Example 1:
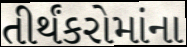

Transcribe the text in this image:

તીર્થંકરોમાંના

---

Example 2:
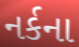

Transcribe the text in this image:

નર્કના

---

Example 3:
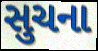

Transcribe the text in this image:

સુચના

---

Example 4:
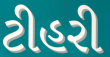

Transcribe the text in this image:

ટીહરી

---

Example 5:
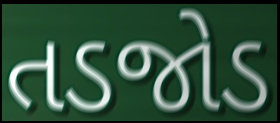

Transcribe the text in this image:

તડજોડ